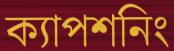
ক্যাপশনিং